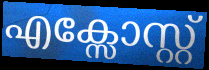
എക്സോസ്റ്റ്